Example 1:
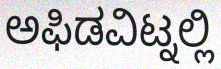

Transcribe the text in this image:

ಅಫಿಡವಿಟ್ನಲ್ಲಿ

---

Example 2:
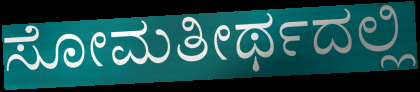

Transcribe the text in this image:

ಸೋಮತೀರ್ಥದಲ್ಲಿ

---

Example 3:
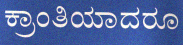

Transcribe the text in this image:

ಕ್ರಾಂತಿಯಾದರೂ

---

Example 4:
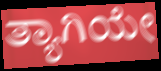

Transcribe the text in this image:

ತ್ಯಾಗಿಯೇ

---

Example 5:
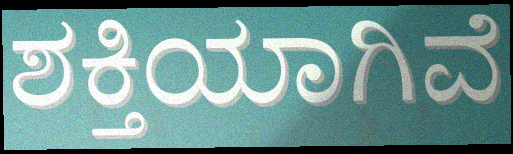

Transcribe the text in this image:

ಶಕ್ತಿಯಾಗಿವೆ